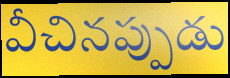
వీచినప్పుడు